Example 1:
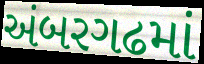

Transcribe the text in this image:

અંબરગઢમાં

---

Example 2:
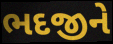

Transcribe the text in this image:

ભદજીને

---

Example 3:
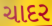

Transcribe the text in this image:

ચાદર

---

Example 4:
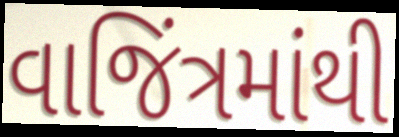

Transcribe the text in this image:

વાજિંત્રમાંથી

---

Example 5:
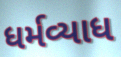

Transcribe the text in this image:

ધર્મવ્યાધ